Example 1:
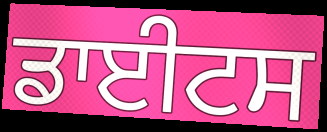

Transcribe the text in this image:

ਡਾਈਟਸ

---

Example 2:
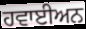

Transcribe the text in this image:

ਹਵਾਈਅਨ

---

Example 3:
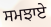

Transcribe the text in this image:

ਸਮਝਾਏ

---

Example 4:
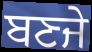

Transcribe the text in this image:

ਬਣਜੇ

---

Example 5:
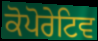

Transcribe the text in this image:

ਕੋਪੋਰੇਟਿਵ